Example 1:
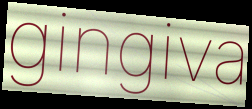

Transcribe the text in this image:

gingiva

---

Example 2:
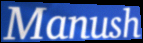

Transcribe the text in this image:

Manush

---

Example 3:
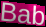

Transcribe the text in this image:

Bab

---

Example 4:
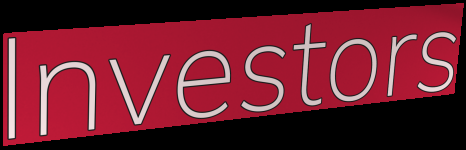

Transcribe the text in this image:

Investors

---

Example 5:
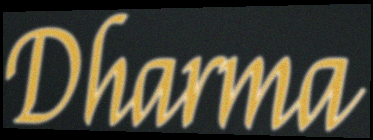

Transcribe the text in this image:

Dharma